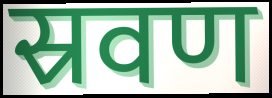
स्रवण